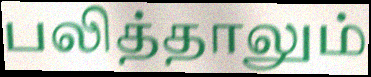
பலித்தாலும்